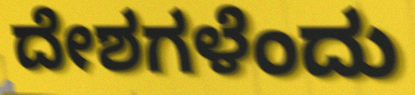
ದೇಶಗಳೆಂದು